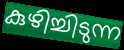
കുഴിച്ചിടുന്ന